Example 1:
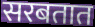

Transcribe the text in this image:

सरबतात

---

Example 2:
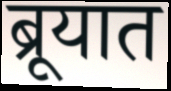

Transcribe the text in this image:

ब्रूयात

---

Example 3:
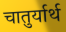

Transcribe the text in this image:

चातुर्यार्थ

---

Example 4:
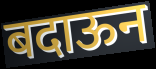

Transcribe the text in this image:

बदाऊन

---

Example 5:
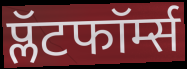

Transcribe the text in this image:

प्लॅटफॉर्म्स